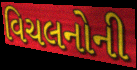
વિચલનોની